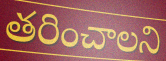
తరించాలని